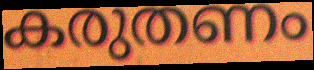
കരുതണം